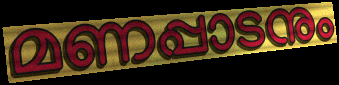
മണപ്പാടനും